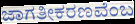
ಜಾಗತೀಕರಣವೆಂಬ